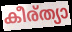
കീര്ത്യാ